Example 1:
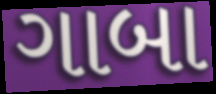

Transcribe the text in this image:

ગાબા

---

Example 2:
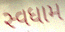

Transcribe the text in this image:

સ્વધામ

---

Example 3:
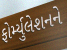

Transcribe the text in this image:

ફોર્મ્યુલેશનને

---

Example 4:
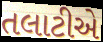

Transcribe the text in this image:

તલાટીએ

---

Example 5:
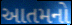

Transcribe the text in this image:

આતમનો